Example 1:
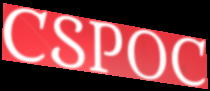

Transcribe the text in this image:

CSPOC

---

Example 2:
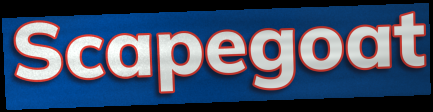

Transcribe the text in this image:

Scapegoat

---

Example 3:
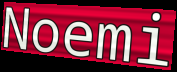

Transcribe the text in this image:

Noemi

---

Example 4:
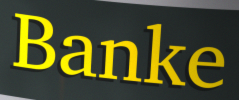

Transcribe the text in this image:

Banke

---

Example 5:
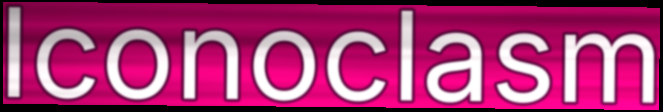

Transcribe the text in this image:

Iconoclasm